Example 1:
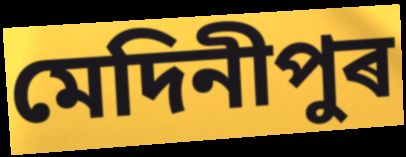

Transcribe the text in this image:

মেদিনীপুৰ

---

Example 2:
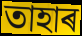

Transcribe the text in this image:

তাহাৰ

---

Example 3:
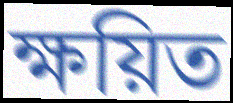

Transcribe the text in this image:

ক্ষয়িত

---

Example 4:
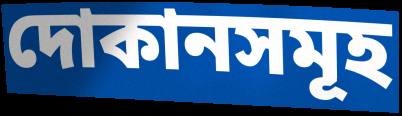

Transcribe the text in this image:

দোকানসমূহ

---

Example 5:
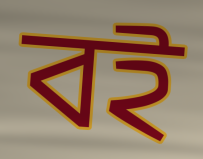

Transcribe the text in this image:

বই